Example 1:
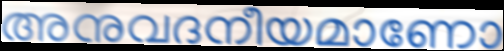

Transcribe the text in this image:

അനുവദനീയമാണോ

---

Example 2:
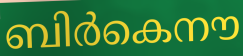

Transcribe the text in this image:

ബിർകെനൗ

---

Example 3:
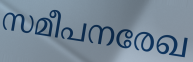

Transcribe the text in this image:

സമീപനരേഖ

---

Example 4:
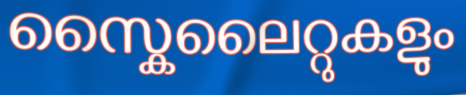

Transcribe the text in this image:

സ്കൈലൈറ്റുകളും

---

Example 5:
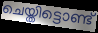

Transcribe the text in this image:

ചെയ്തിട്ടൊണ്ട്